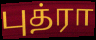
புத்ரா